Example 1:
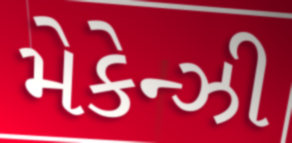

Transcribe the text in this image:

મેકેન્ઝી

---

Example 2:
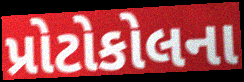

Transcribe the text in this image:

પ્રોટોકોલના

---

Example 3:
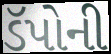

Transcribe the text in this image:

ડૅપોની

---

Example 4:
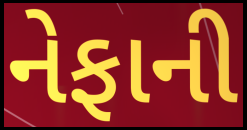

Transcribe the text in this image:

નેફાની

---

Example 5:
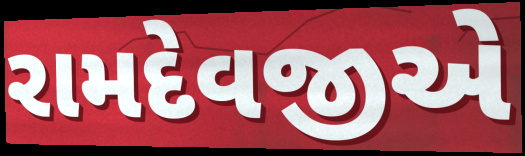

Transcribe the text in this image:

રામદેવજીએ